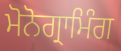
ਮੋਨੋਗ੍ਰਾਮਿੰਗ